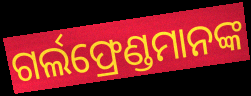
ଗର୍ଲଫ୍ରେଣ୍ଡମାନଙ୍କ